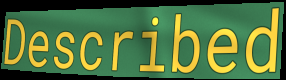
Described